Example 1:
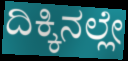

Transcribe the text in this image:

ದಿಕ್ಕಿನಲ್ಲೇ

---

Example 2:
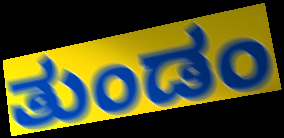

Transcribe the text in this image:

ತುಂಡಂ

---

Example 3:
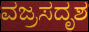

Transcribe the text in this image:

ವಜ್ರಸದೃಶ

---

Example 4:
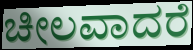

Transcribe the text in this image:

ಚೀಲವಾದರೆ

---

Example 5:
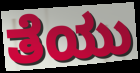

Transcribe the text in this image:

ತೆಯು